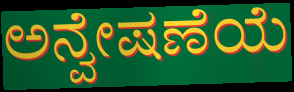
ಅನ್ವೇಷಣೆಯೆ